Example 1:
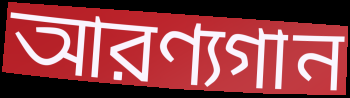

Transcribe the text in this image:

আরণ্যগান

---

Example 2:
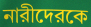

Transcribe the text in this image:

নারীদেরকে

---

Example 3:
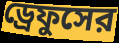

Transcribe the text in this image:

ড্রেফুসের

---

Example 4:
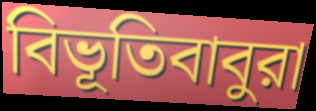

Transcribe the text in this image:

বিভূতিবাবুরা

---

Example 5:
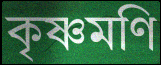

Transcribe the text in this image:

কৃষ্ণমণি